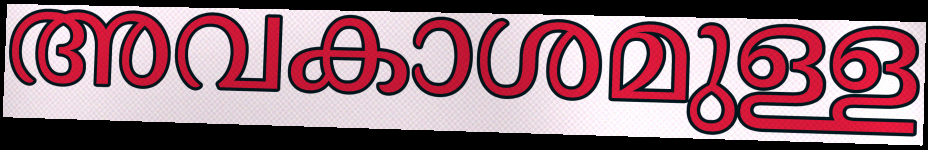
അവകാശമുള്ള